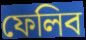
ফেলিব